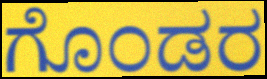
ಗೊಂಡರ